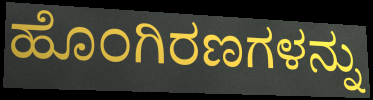
ಹೊಂಗಿರಣಗಳನ್ನು